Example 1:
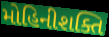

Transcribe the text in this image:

મોહિનીશક્તિ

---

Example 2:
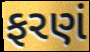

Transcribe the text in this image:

ફરણં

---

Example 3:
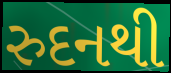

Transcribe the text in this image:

રુદનથી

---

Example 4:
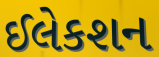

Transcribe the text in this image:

ઈલેકશન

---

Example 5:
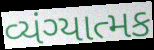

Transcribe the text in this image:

વ્યંગ્યાત્મક